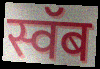
स्वॅब